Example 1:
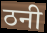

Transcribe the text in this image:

ठनी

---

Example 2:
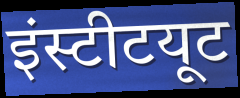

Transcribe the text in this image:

इंस्‍टीटयूट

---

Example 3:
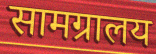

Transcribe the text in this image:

सामग्रालय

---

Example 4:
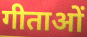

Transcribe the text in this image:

गीताओं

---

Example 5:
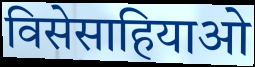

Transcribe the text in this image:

विसेसाहियाओ